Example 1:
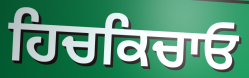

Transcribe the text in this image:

ਹਿਚਕਿਚਾਓ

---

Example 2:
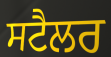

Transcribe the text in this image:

ਸਟੈਲਰ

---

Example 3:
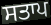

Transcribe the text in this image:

ਸਤਾਪ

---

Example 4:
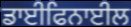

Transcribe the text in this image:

ਡਾਈਫਿਨਾਈਲ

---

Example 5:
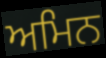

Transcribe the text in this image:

ਅਮਿਨ